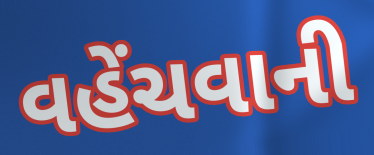
વહેંચવાની